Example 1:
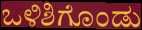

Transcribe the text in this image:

ಒಳಿಶಿಗೊಂಡು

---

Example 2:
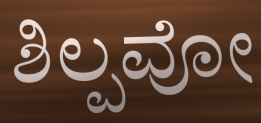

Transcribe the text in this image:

ಶಿಲ್ಪವೋ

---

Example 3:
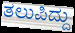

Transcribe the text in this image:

ತಲುಪಿದ್ದು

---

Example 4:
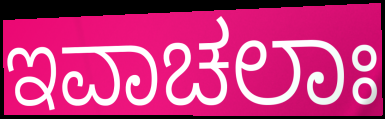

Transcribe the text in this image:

ಇವಾಚಲಾಃ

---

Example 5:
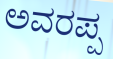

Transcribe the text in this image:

ಅವರಪ್ಪ